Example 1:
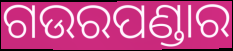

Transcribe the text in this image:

ଗଉରପଣ୍ଡାର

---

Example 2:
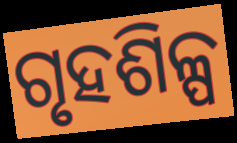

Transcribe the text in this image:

ଗୃହଶିଳ୍ପ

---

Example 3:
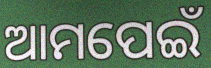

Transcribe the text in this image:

ଆମପେଇଁ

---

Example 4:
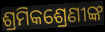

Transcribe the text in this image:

ଶ୍ରମିକଶ୍ରେଣୀଙ୍କ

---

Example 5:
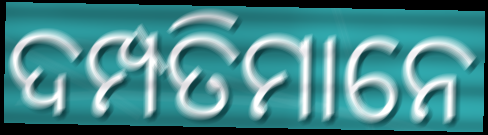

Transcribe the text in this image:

ଦମ୍ପତିମାନେ